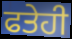
ਫਤੇਹੀ